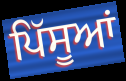
ਪਿੱਸੂਆਂ